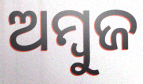
ଅମ୍ୱୁଜ